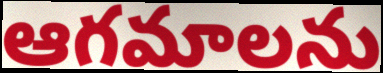
ఆగమాలను